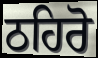
ਠਹਿਰੋ